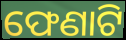
ଫେଣାଟି